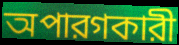
অপারগকারী